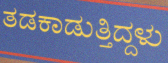
ತಡಕಾಡುತ್ತಿದ್ದಳು